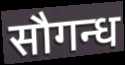
सौगन्ध